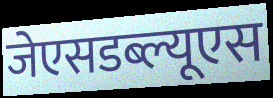
जेएसडब्ल्यूएस